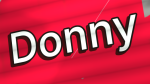
Donny